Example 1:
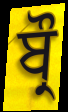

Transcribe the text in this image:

ਬ੍ਰੌ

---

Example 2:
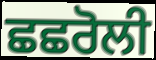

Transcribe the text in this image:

ਛਛਰੋਲੀ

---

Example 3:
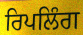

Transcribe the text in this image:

ਰਿਪਲਿੰਗ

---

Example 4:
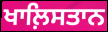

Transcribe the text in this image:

ਖਾਲ਼ਿਸਤਾਨ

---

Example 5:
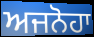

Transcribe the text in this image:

ਅਜਨੋਹਾ